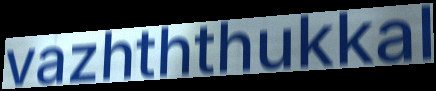
vazhththukkal